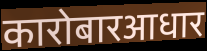
कारोबारआधार